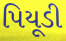
પિયૂડી